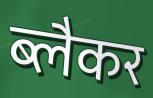
ब्लैकर